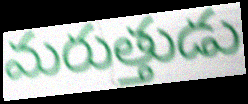
మరుత్తుడు